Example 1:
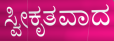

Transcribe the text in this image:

ಸ್ವೀಕೃತವಾದ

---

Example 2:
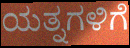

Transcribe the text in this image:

ಯತ್ನಗಳಿಗೆ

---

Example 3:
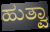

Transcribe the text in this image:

ಹುತ್ವಾ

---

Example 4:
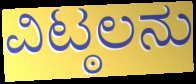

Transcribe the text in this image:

ವಿಟ್ಠಲನು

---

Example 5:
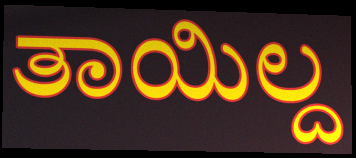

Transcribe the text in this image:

ತಾಯಿಲ್ದ